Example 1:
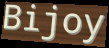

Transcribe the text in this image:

Bijoy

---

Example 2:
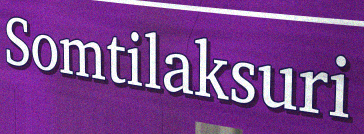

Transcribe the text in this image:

Somtilaksuri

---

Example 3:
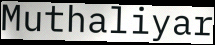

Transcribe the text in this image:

Muthaliyar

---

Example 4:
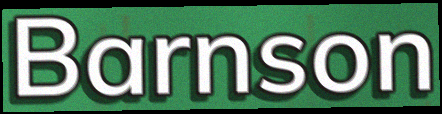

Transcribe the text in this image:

Barnson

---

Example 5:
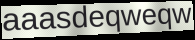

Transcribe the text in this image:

aaasdeqweqw